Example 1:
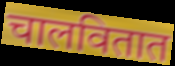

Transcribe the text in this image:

चालवितात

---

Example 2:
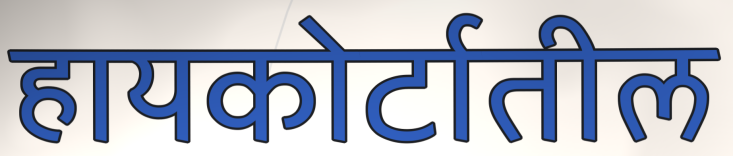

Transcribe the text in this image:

हायकोर्टातील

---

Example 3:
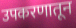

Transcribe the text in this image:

उपकरणातून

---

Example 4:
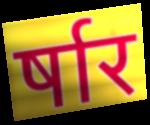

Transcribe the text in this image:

र्षार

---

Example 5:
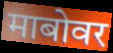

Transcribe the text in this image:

माबोवर